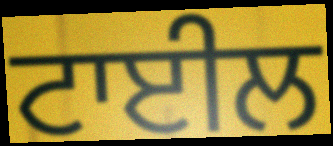
ਟਾਈਲ